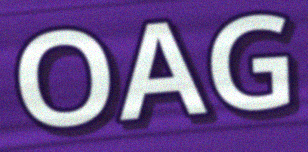
OAG